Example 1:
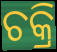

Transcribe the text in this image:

ଚକ୍ରି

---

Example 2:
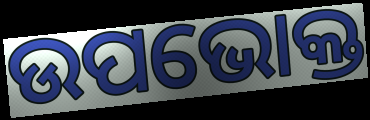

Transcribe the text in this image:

ଉପଭୋକ୍ତ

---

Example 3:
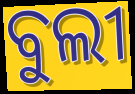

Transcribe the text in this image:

ବୁଲୀ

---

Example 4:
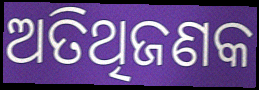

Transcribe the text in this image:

ଅତିଥିଜଣକ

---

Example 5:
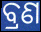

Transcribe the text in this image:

ବ୍ରଣ